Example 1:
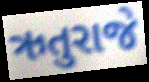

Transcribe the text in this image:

ઋતુરાજે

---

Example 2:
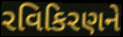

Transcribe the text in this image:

રવિકિરણને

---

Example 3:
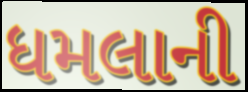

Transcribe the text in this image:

ધમલાની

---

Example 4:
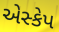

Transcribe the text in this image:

એસ્કેપ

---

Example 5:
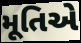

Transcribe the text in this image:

મૂતિએ